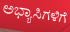
ಅಭ್ಯಾಸಿಗಳಿಗೆ